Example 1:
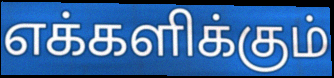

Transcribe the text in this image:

எக்களிக்கும்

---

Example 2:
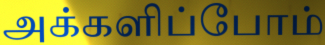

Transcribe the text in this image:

அக்களிப்போம்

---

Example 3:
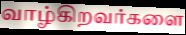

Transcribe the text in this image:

வாழ்கிறவர்களை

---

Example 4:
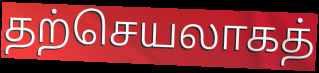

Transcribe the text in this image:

தற்செயலாகத்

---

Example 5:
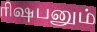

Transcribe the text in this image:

ரிஷபனும்